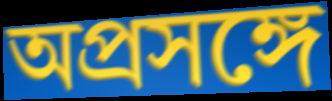
অপ্রসঙ্গে